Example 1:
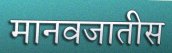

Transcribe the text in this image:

मानवजातीस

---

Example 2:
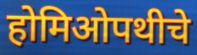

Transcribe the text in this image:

होमिओपथीचे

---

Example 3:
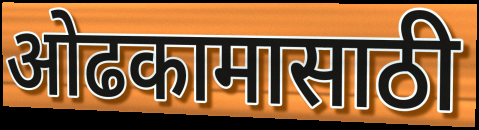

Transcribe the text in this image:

ओढकामासाठी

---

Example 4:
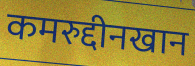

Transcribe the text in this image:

कमरुद्दीनखान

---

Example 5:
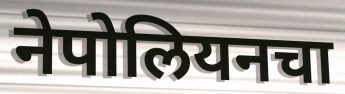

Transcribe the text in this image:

नेपोलियनचा